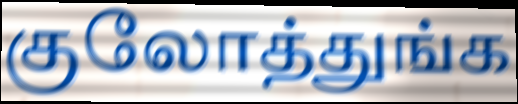
குலோத்துங்க